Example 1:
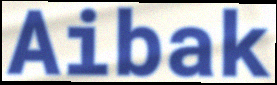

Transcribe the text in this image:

Aibak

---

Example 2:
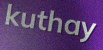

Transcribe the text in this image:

kuthay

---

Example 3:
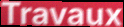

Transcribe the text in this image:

Travaux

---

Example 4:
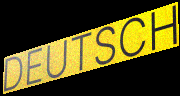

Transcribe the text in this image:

DEUTSCH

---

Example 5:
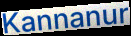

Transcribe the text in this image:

Kannanur